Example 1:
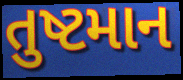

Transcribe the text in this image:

તુષ્ટમાન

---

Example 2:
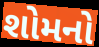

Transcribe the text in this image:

શોમનો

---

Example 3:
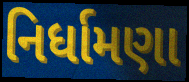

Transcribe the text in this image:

નિર્ધામણા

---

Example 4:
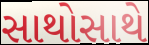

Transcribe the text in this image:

સાથોસાથે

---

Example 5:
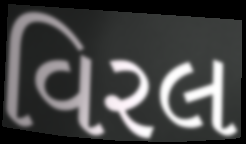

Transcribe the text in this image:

વિરલ